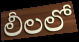
లీలలో